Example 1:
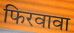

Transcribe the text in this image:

फिरवावा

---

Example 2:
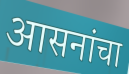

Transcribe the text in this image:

आसनांचा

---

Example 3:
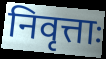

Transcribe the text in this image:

निवृत्ताः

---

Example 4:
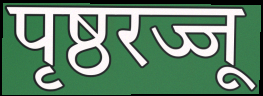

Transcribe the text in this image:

पृष्ठरज्जू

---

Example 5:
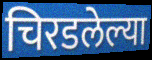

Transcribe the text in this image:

चिरडलेल्या